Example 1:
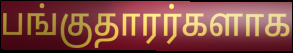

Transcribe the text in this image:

பங்குதாரர்களாக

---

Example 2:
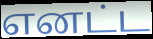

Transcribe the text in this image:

எனட்ட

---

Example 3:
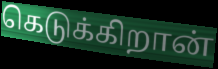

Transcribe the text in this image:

கெடுக்கிறான்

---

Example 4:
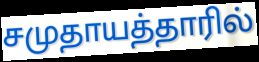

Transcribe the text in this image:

சமுதாயத்தாரில்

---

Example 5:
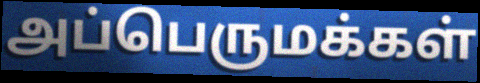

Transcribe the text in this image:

அப்பெருமக்கள்